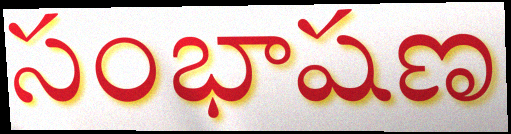
సంభాషణ